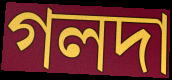
গলদা